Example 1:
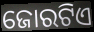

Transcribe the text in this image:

ଜୋରଟିଏ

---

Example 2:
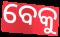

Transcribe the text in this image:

ବେକୁ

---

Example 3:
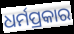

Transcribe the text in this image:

ଧର୍ମପ୍ରକାର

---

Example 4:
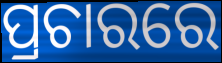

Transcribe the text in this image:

ପ୍ରଚାରରେ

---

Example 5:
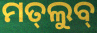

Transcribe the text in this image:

ମତ୍‌ଲୁବ୍